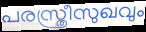
പരസ്ത്രീസുഖവും